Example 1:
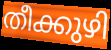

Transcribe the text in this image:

തീക്കുഴി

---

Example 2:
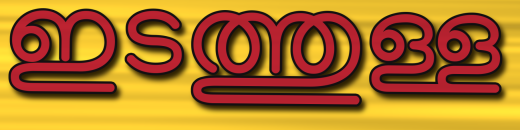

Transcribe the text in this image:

ഇടത്തുള്ള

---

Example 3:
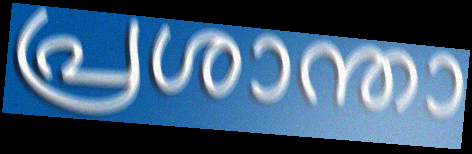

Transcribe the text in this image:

പ്രശാന്താ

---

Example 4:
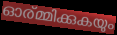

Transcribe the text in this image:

ഓര്മ്മിക്കുകയും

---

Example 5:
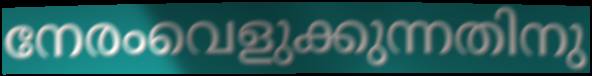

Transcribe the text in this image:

നേരംവെളുക്കുന്നതിനു